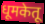
धूमकेतू